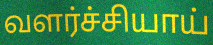
வளர்ச்சியாய்